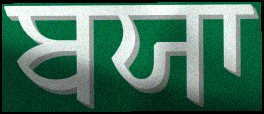
ਬਯਾ